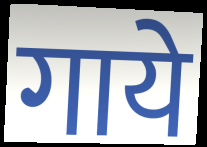
गाये